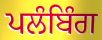
ਪਲੰਬਿੰਗ